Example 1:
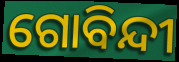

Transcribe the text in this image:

ଗୋବିନ୍ଦୀ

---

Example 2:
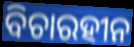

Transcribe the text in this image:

ବିଚାରହୀନ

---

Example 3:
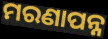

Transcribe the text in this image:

ମରଣାପନ୍ନ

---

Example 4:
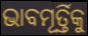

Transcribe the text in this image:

ଭାବମୂର୍ତ୍ତିକୁ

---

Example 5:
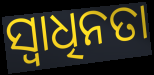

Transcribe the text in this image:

ସ୍ଵାଧିନତା